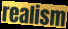
realism